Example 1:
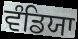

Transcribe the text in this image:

ਵੰਡਿਯਾ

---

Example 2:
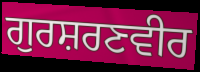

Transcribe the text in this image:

ਗੁਰਸ਼ਰਣਵੀਰ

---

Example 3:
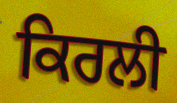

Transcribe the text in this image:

ਕਿਰਲੀ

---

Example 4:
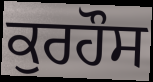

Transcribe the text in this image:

ਕੁਰਹੌਸ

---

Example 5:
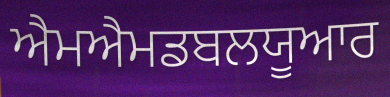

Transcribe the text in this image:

ਐਮਐਮਡਬਲਯੂਆਰ